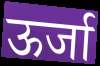
ऊर्जा